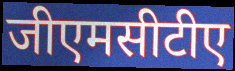
जीएमसीटीए